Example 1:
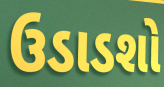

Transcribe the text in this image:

ઉડાડશો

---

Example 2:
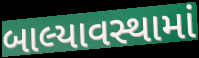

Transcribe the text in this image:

બાલ્યાવસ્થામાં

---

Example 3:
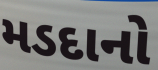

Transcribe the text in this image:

મડદાનો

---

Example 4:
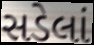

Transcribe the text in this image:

સડેલાં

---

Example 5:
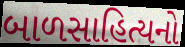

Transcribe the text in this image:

બાળસાહિત્યનો